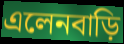
এলেনবাড়ি